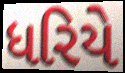
ધરિયે